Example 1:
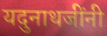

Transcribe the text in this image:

यदुनाथजींनी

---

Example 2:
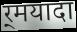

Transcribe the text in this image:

र्मयादा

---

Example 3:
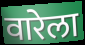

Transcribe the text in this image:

वारेला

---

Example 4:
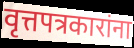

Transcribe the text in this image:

वृत्तपत्रकारांना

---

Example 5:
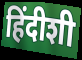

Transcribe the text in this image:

हिंदीशी